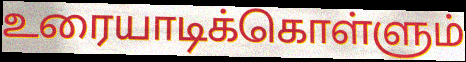
உரையாடிக்கொள்ளும்